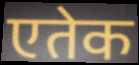
एतेक